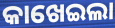
କାଖେଇଲା